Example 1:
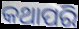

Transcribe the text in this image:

କଥାପରି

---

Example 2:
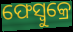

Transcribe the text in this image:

ଫେସ୍ବୁକ୍ରେ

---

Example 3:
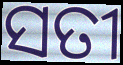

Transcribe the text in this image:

ସତୀ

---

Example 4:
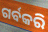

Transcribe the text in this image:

ଗର୍ବକରି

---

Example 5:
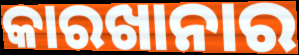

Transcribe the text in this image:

କାରଖାନାର